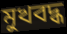
মুখবদ্ধ